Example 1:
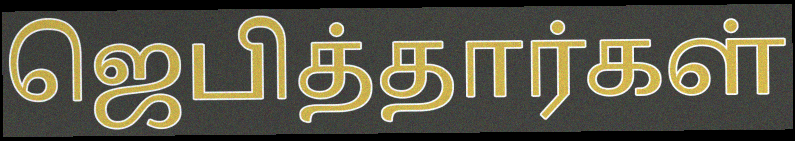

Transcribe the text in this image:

ஜெபித்தார்கள்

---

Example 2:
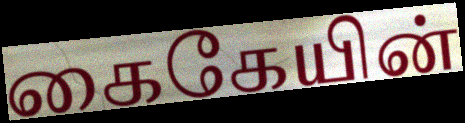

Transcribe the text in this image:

கைகேயின்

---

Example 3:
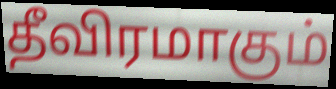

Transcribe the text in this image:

தீவிரமாகும்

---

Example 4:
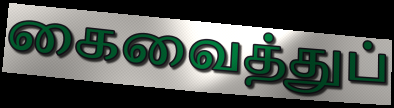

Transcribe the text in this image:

கைவைத்துப்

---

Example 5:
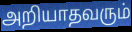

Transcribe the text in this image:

அறியாதவரும்